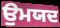
ਉਮਯਦ